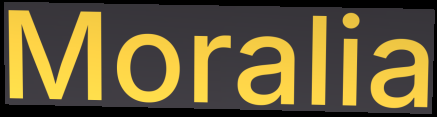
Moralia